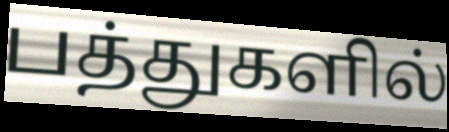
பத்துகளில்